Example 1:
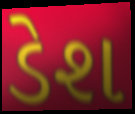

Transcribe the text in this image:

ડેશ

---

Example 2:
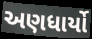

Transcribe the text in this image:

અણધાર્યો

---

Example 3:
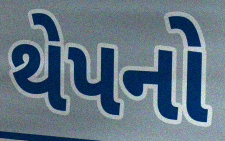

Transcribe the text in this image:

થેપનો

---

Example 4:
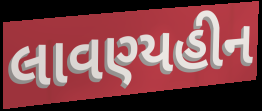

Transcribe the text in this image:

લાવણ્યહીન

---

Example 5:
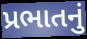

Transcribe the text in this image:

પ્રભાતનું